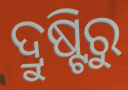
ଦ୍ରୁଷ୍ଟିରୁ